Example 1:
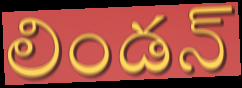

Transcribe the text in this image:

లిండన్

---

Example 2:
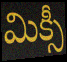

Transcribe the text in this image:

మిక్సీ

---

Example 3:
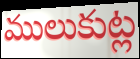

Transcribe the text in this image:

ములుకుట్ల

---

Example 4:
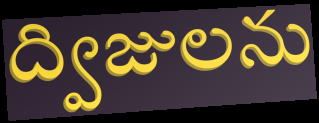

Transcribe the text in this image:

ద్విజులను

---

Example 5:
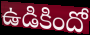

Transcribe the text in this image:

ఉడికిందో